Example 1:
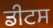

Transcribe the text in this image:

ਡੀਟਸ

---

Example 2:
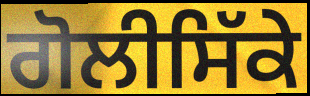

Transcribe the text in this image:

ਗੋਲੀਸਿੱਕੇ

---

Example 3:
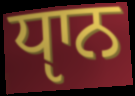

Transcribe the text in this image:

ਧੵਾਨ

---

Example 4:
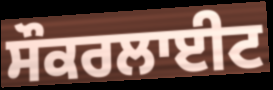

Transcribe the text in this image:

ਸੌਕਰਲਾਈਟ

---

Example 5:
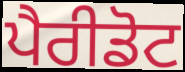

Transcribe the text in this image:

ਪੈਰੀਡੋਟ